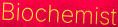
Biochemist